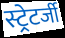
स्ट्रेटर्जी